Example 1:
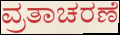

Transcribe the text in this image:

ವ್ರತಾಚರಣೆ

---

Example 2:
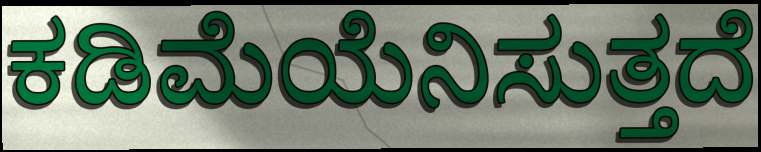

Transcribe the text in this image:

ಕಡಿಮೆಯೆನಿಸುತ್ತದೆ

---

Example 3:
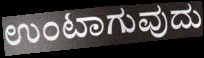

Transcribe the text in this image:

ಉಂಟಾಗುವುದು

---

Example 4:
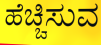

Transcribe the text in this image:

ಹೆಚ್ಚಿಸುವ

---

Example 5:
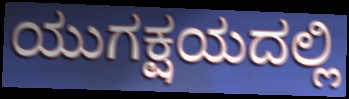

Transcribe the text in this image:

ಯುಗಕ್ಷಯದಲ್ಲಿ